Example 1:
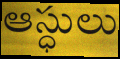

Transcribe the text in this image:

ఆస్ధులు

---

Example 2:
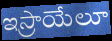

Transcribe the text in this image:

ఇస్రాయేలూ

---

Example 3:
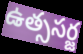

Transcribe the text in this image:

ఉత్ససర్జ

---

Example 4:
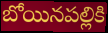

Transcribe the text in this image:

బోయినపల్లికి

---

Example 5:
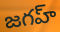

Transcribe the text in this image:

జగహ్